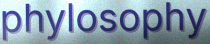
phylosophy